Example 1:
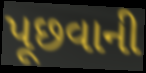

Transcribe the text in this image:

પૂછવાની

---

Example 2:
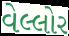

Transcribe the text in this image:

વેલ્લોર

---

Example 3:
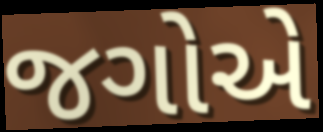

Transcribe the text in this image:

જગોએ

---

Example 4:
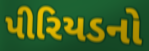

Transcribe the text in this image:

પીરિયડનો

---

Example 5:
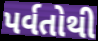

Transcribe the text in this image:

પર્વતોથી